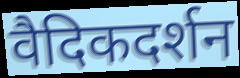
वैदिकदर्शन